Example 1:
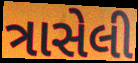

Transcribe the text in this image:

ત્રાસેલી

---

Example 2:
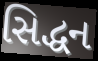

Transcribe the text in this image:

સિદ્ધન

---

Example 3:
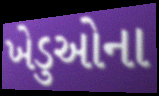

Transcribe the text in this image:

ખેડુઓના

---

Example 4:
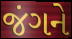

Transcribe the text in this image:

જંગને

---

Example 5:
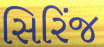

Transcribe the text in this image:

સિરિંજ